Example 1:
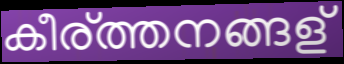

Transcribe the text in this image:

കീര്ത്തനങ്ങള്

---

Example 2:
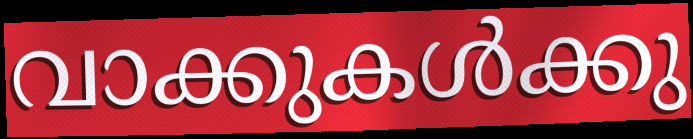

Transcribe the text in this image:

വാക്കുകൾക്കു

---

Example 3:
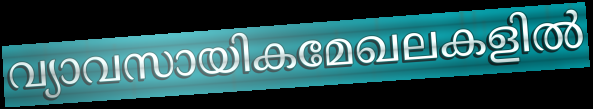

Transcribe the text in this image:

വ്യാവസായികമേഖലകളിൽ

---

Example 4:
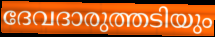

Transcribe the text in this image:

ദേവദാരുത്തടിയും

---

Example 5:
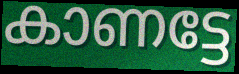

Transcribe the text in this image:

കാണട്ടേ